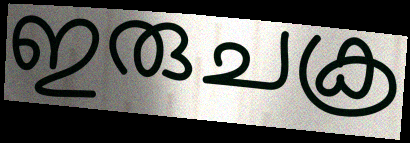
ഇരുചക്ര